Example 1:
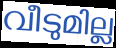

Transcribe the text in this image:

വീടുമില്ല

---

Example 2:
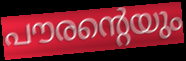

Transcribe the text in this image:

പൗരന്റെയും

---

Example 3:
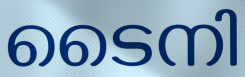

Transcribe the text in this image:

ടൈനി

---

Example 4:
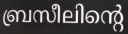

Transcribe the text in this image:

ബ്രസീലിന്റെ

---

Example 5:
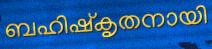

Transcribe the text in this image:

ബഹിഷ്കൃതനായി